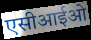
एसीआईओ